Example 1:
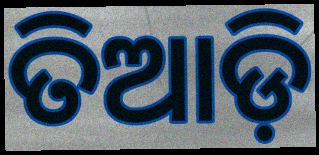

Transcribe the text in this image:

ତିଆଡ଼ି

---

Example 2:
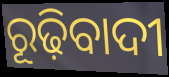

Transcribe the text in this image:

ରୂଢ଼ିବାଦୀ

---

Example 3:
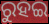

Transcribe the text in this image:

ରୁହଇ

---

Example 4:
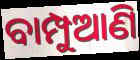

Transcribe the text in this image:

ବାମ୍ପୁଆଣି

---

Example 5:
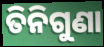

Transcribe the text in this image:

ତିନିଗୁଣା